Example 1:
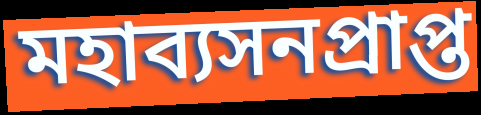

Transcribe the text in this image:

মহাব্যসনপ্রাপ্ত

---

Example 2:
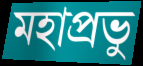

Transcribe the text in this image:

মহাপ্রভু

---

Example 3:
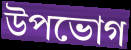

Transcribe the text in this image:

উপভোগ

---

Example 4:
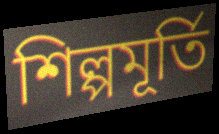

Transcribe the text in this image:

শিল্পমূর্তি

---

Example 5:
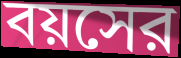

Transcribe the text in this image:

বয়সের